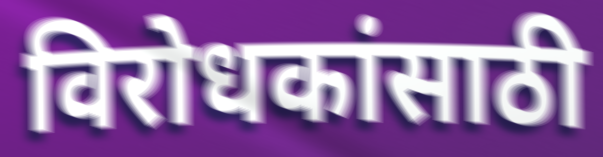
विरोधकांसाठी